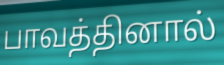
பாவத்தினால்